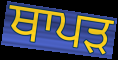
ਥਾਪੜ